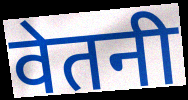
वेतनी